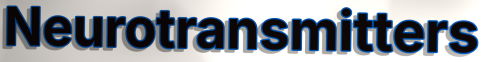
Neurotransmitters